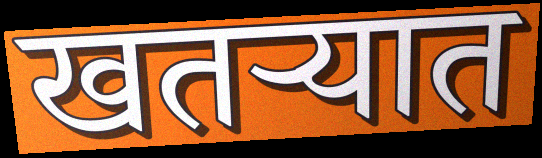
खतऱ्यात